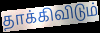
தாக்கிவிடும்